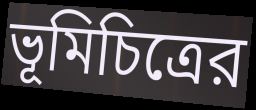
ভূমিচিত্রের